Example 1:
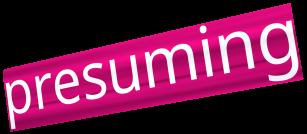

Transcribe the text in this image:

presuming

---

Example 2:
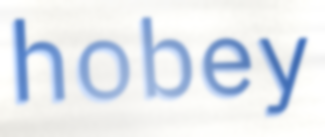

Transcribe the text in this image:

hobey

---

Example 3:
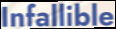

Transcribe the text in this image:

Infallible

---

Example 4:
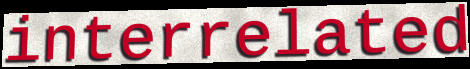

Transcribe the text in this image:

interrelated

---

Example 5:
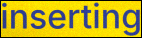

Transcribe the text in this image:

inserting